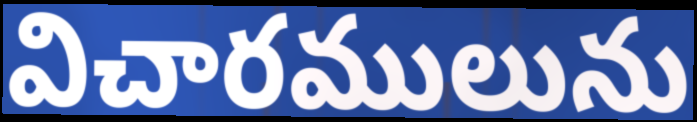
విచారములును